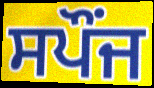
ਸਪੌਂਜ